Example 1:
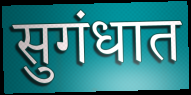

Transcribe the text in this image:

सुगंधात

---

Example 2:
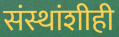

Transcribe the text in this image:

संस्थांशीही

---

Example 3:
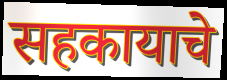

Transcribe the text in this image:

सहकायाचे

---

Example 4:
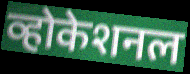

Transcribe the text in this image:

व्होकेशनल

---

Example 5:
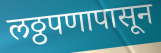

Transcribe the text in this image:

लठ्ठपणापासून